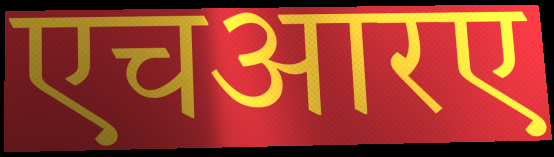
एचआरए